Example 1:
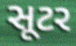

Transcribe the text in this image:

સૂટર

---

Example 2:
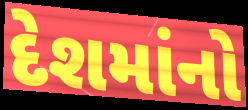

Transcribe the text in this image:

દેશમાંનો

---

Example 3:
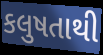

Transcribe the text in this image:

કલુષતાથી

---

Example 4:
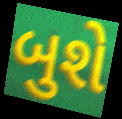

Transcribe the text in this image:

બુશે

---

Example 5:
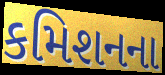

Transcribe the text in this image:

કમિશનના